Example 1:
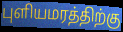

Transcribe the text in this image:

புளியமரத்திற்கு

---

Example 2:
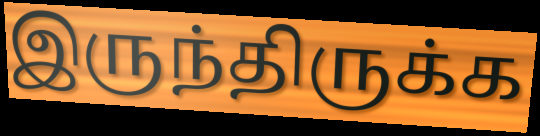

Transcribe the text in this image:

இருந்திருக்க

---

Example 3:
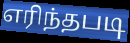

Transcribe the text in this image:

எரிந்தபடி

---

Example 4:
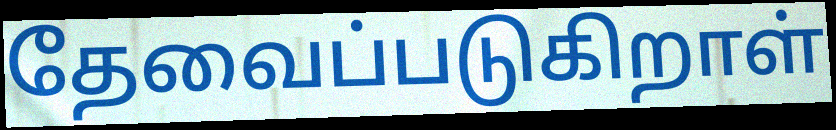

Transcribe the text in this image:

தேவைப்படுகிறாள்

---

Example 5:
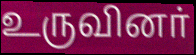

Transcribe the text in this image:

உருவினர்